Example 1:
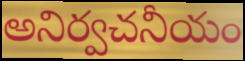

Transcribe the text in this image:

అనిర్వచనీయం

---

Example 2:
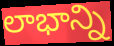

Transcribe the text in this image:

లాభాన్ని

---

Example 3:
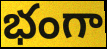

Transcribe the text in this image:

భంగా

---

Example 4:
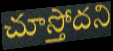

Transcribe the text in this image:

చూస్తోదని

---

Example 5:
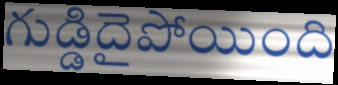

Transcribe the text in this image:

గుడ్డిదైపోయింది